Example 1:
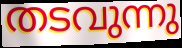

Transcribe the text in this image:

തടവുന്നു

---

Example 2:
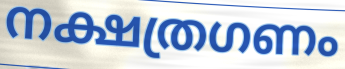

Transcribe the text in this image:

നക്ഷത്രഗണം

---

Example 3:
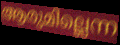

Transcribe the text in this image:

ആരുമില്ലെന്ന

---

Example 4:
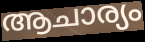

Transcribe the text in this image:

ആചാര്യം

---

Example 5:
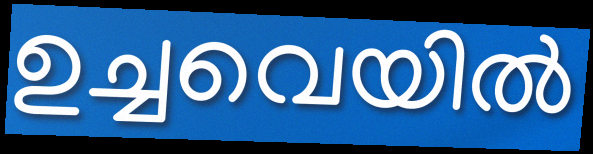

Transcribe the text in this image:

ഉച്ചവെയിൽ